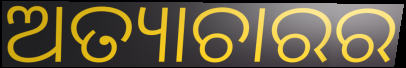
ଅତ୍ୟାଚାରର